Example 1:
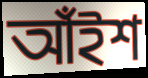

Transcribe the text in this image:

আঁইশ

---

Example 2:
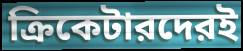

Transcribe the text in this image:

ক্রিকেটারদেরই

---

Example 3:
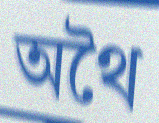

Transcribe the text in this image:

অথৈ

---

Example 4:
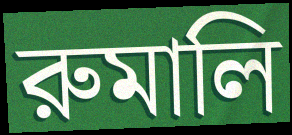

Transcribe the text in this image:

রুমালি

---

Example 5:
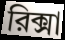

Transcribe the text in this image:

রিক্সা